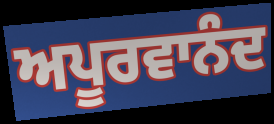
ਅਪੂਰਵਾਨੰਦ